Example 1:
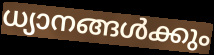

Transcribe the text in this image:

ധ്യാനങ്ങൾക്കും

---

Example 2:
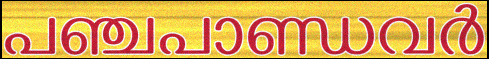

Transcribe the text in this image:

പഞ്ചപാണ്ഡവർ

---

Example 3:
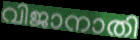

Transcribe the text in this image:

വിജാനാതി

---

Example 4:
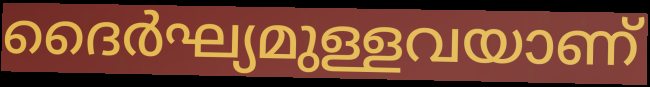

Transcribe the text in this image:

ദൈർഘ്യമുള്ളവയാണ്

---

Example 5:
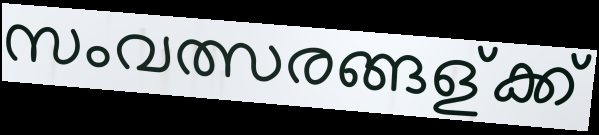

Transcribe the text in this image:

സംവത്സരങ്ങള്ക്ക്